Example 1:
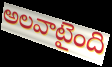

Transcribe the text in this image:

అలవాటైంది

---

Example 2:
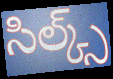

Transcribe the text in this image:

సిల్క్స్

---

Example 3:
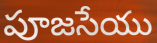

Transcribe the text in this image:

పూజసేయు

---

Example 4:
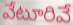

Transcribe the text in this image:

వేటూరివే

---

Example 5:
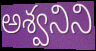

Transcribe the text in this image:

అశ్వనిని